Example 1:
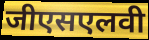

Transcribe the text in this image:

जीएसएलवी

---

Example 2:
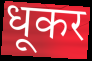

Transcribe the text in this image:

धूकर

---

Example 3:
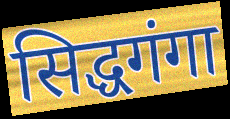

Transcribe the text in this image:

सिद्धगंगा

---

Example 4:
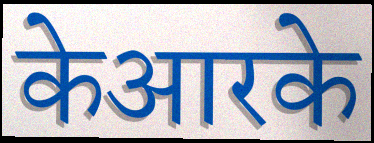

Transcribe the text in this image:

केआरके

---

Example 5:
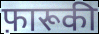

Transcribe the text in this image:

फ़ारूकी